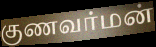
குணவர்மன்